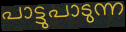
പാട്ടുപാടുന്ന